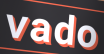
vado